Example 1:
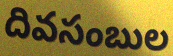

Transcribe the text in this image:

దివసంబుల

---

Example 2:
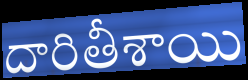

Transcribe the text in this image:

దారితీశాయి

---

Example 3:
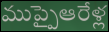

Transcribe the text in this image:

ముప్పైఆరేళ్ల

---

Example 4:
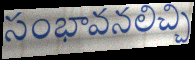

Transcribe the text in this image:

సంభావనలిచ్చి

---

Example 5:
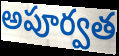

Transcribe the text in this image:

అపూర్వత